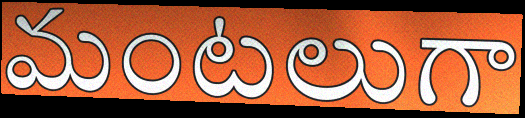
మంటలుగా